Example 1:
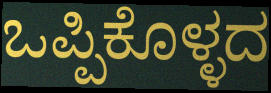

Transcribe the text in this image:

ಒಪ್ಪಿಕೊಳ್ಳದ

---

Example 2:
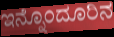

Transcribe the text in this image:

ಇನ್ನೊಂದೂರಿನ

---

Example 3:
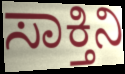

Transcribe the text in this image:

ಸಾಕ್ತಿನಿ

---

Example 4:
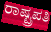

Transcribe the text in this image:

ರಾಷ್ಟ್ರಪತಿ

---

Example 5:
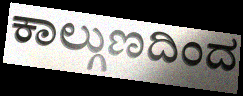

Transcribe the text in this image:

ಕಾಲ್ಗುಣದಿಂದ